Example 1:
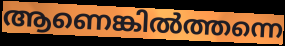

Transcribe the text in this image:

ആണെങ്കിൽത്തന്നെ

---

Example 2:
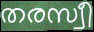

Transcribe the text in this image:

തരസ്വീ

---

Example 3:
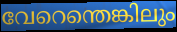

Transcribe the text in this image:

വേറെന്തെങ്കിലും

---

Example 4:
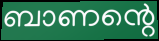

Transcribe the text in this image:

ബാണന്റെ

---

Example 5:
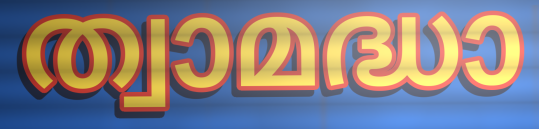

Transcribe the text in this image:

ത്വാമദ്ധാ